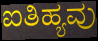
ಐತಿಹ್ಯವು